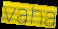
vaha